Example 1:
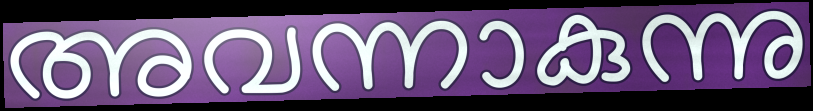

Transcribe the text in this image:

അവന്നാകുന്നു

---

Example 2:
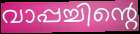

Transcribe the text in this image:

വാപ്പച്ചിന്റെ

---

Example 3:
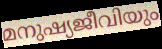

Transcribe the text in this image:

മനുഷ്യജീവിയും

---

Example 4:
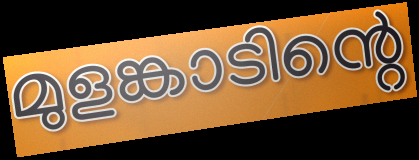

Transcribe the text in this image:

മുളങ്കാടിന്റെ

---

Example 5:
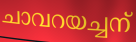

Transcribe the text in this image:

ചാവറയച്ചന്